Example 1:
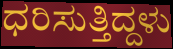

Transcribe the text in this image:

ಧರಿಸುತ್ತಿದ್ದಳು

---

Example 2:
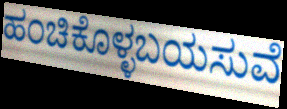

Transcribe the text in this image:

ಹಂಚಿಕೊಳ್ಳಬಯಸುವೆ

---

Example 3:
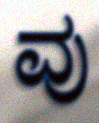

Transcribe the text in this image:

ವು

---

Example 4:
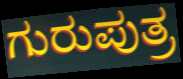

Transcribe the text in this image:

ಗುರುಪುತ್ರ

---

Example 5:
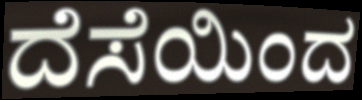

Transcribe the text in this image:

ದೆಸೆಯಿಂದ